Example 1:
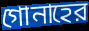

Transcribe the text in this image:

গোনাহের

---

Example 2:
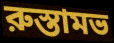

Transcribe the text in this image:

রুস্তামভ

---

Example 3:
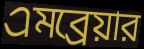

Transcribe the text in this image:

এমব্রেয়ার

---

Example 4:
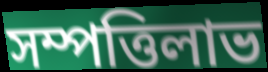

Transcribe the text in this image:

সম্পত্তিলাভ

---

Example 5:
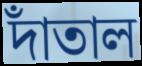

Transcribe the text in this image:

দাঁতাল